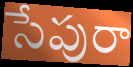
సేపురా